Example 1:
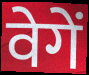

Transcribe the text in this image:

वेगें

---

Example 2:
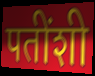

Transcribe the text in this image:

पतींशी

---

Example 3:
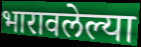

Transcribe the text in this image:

भारावलेल्या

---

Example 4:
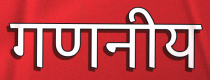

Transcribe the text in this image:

गणनीय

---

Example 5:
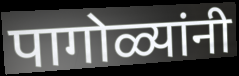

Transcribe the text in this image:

पागोळ्यांनी